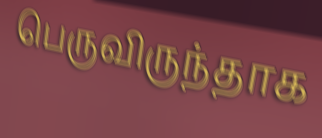
பெருவிருந்தாக